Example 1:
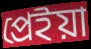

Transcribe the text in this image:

প্রেইয়া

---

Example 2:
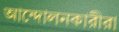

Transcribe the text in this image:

আন্দোলনকারীরা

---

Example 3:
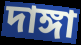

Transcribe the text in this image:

দাঙ্গা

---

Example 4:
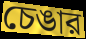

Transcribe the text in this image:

চেঙার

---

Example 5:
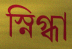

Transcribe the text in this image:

স্নিগ্ধা